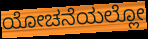
ಯೋಚನೆಯಲ್ಲೋ